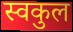
स्वकुल